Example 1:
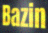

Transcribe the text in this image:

Bazin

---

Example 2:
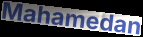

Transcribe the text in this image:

Mahamedan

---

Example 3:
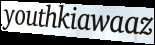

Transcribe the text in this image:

youthkiawaaz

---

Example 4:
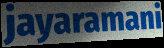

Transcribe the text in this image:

jayaramani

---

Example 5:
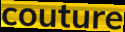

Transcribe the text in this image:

couture